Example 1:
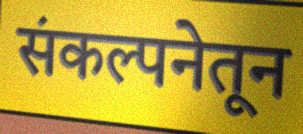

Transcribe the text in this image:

संकल्पनेतून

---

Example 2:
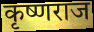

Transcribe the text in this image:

कृष्णराज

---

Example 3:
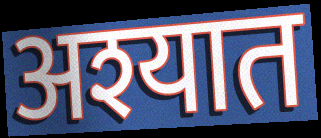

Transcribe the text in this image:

अश्यात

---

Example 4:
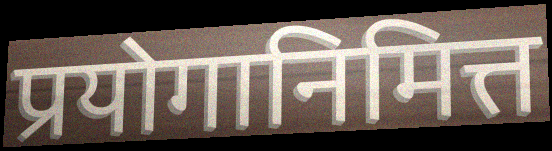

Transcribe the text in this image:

प्रयोगानिमित्त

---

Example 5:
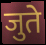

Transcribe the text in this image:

जुते